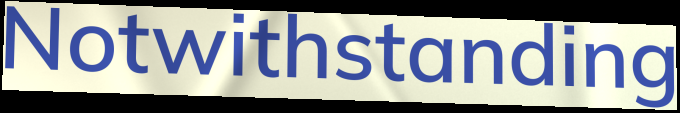
Notwithstanding